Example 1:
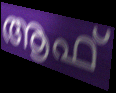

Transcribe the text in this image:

ആഫ്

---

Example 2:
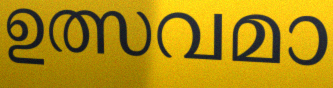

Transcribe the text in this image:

ഉത്സവമാ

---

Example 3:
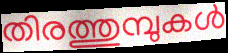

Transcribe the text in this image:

തിരത്തുമ്പുകൾ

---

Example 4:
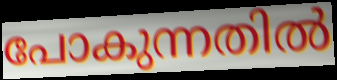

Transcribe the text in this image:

പോകുന്നതിൽ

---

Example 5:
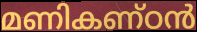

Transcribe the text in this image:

മണികണ്ഠൻ